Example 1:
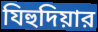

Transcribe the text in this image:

যিহুদিয়ার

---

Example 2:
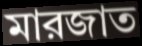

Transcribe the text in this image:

মারজাত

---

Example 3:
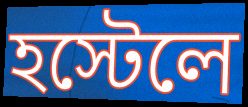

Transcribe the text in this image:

হস্টেলে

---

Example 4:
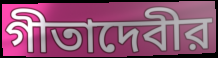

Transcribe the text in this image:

গীতাদেবীর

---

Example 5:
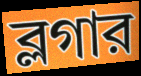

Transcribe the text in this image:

ব্লগার